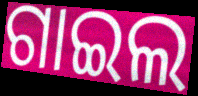
ଗାଇଲ